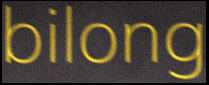
bilong